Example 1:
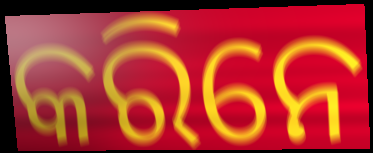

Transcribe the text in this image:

କରିନେ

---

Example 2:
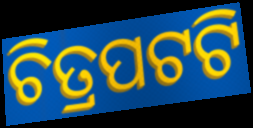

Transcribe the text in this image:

ଚିତ୍ରପଟଟି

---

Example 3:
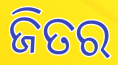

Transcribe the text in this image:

ଜିତର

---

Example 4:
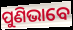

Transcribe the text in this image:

ପୁଣିଭାବେ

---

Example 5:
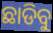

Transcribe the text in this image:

ଛାଡିବୁ